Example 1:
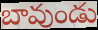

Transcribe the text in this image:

బావుండు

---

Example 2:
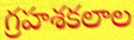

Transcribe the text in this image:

గ్రహశకలాల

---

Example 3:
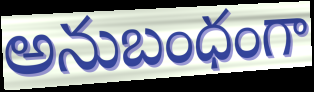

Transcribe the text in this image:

అనుబంధంగా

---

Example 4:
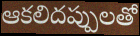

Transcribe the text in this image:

ఆకలిదప్పులతో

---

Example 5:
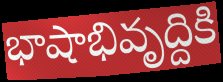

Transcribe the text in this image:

భాషాభివృద్దికి